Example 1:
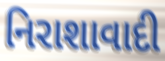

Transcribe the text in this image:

નિરાશાવાદી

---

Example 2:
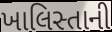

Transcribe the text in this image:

ખાલિસ્તાની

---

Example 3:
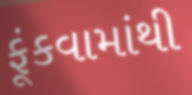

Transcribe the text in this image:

ફૂંકવામાંથી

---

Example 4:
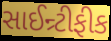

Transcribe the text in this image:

સાઈન્ર્ટીફીક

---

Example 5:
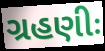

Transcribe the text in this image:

ગ્રહણીઃ